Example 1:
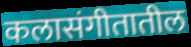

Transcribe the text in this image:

कलासंगीतातील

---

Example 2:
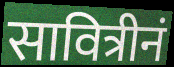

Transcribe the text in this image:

सावित्रीनं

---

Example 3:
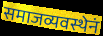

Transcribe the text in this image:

समाजव्यवस्थेनं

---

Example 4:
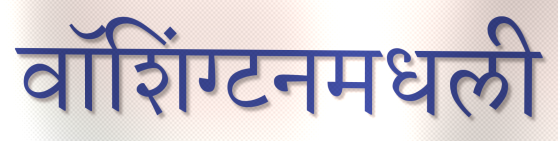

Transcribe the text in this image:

वॉशिंग्टनमधली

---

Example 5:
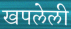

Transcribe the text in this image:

खपलेली